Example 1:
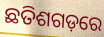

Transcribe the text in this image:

ଛତିଶଗଡ଼ରେ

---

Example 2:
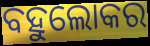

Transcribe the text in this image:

ବହୁଲୋକର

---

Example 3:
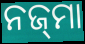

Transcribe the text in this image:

ନଜ୍‌ମା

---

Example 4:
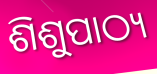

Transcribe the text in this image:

ଶିଶୁପାଠ୍ୟ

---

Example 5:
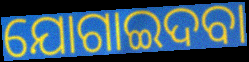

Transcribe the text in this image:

ଯୋଗାଇଦବା